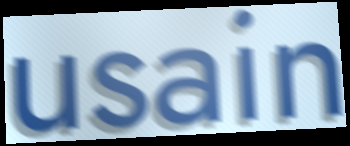
usain